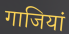
गाजियां